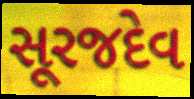
સૂરજદેવ